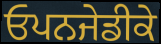
ਓਪਨਜੇਡੀਕੇ